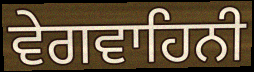
ਵੇਗਵਾਹਿਨੀ